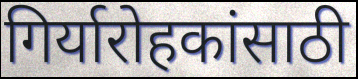
गिर्यारोहकांसाठी